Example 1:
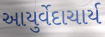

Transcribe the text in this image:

આયુર્વેદાચાર્ય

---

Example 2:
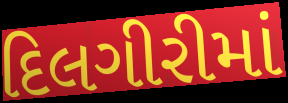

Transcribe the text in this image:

દિલગીરીમાં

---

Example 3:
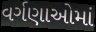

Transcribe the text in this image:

વર્ગણાઓમાં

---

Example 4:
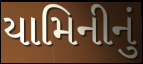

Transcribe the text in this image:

યામિનીનું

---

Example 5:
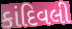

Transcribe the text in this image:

કાંદિવલી